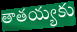
తాతయ్యకు